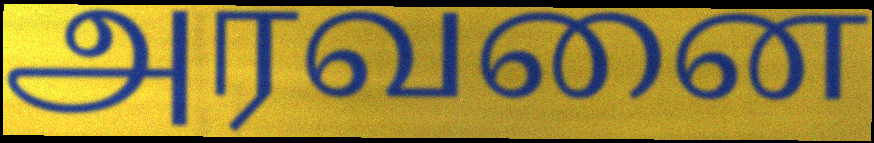
அரவனை